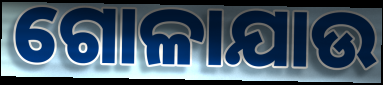
ଗୋଳାଯାଉ